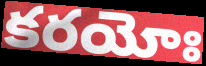
కరయోః